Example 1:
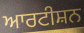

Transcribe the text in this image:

ਆਰਟੀਸ਼ਨ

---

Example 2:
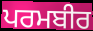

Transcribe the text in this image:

ਪਰਮਬੀਰ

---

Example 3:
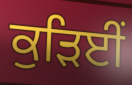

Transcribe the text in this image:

ਕੁੜਿਈਂ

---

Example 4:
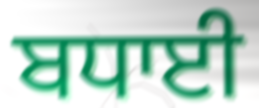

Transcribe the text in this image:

ਬਧਾਈ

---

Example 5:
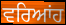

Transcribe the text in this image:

ਵਰਿਆਂਹ